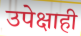
उपेक्षाही